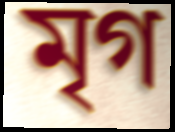
মৃগ